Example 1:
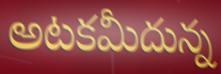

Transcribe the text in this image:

అటకమీదున్న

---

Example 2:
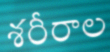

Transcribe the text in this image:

శరీరాల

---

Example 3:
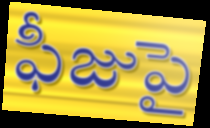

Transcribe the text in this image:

ఫీజుపై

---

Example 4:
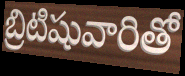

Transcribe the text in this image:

బ్రిటిషువారితో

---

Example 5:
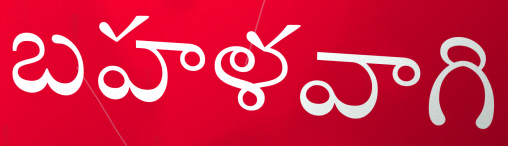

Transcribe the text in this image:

బహళవాగి